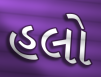
હલો